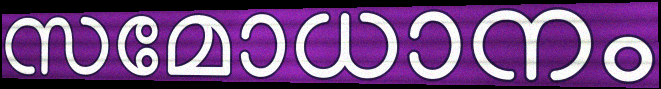
സമോധാനം